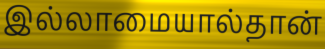
இல்லாமையால்தான்